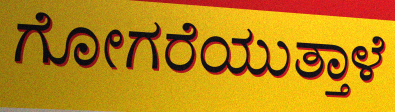
ಗೋಗರೆಯುತ್ತಾಳೆ